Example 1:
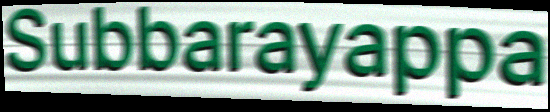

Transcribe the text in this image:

Subbarayappa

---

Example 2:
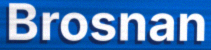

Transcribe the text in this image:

Brosnan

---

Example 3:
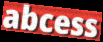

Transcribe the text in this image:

abcess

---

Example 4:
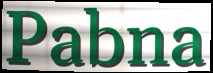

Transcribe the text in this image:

Pabna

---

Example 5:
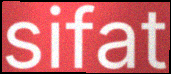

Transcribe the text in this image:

sifat